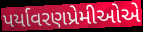
પર્યાવરણપ્રેમીઓએ